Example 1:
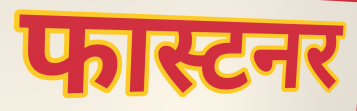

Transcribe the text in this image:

फास्टनर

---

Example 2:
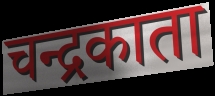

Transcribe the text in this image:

चन्द्रकाता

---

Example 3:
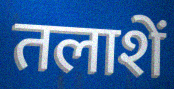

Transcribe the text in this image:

तलाशें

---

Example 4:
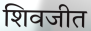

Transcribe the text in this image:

शिवजीत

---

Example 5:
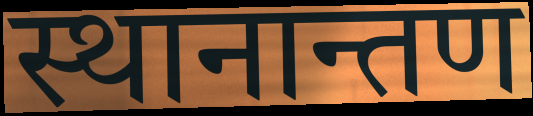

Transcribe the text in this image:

स्थानान्तण